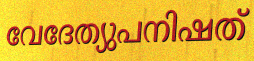
വേദേത്യുപനിഷത്